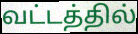
வட்டத்தில்